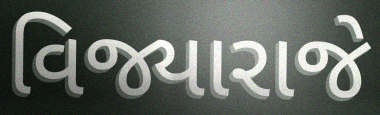
વિજ્યારાજે